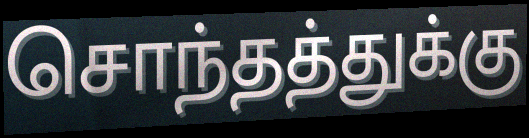
சொந்தத்துக்கு